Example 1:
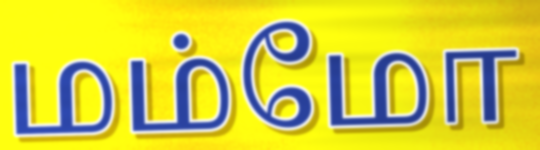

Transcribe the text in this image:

மம்மோ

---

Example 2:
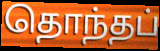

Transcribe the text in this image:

தொந்தப்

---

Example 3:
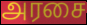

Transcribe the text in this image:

அரசை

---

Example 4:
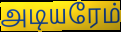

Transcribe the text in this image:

அடியரேம்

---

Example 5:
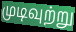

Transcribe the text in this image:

முடிவுற்று